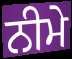
ਨੀਮੇ